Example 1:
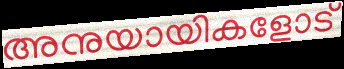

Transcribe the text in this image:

അനുയായികളോട്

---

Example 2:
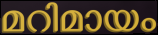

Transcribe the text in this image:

മറിമായം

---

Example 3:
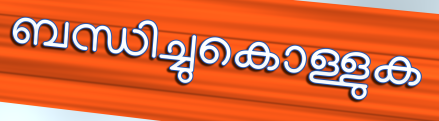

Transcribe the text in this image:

ബന്ധിച്ചുകൊള്ളുക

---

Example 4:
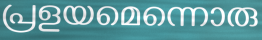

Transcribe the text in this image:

പ്രളയമെന്നൊരു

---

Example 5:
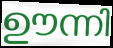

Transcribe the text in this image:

ഊന്നി